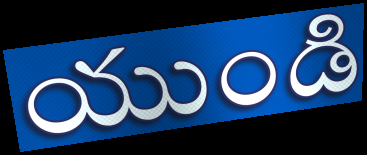
యుండి